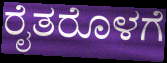
ರೈತರೊಳಗೆ